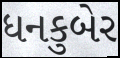
ધનકુબેર